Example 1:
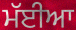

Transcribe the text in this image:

ਮੱਈਆ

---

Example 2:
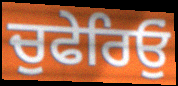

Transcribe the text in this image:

ਚੁਫੇਰਿਓੁਂ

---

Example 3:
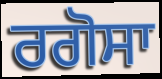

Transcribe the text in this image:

ਰਗੋਸਾ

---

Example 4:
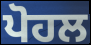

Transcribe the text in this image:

ਪੋਹਲ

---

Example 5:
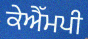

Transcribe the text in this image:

ਕੇਐੱਮਪੀ